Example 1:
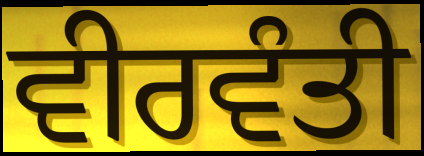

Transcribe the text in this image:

ਵੀਰਵੰਤੀ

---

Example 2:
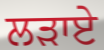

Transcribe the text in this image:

ਲੜਾਏ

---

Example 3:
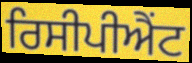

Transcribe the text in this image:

ਰਿਸੀਪੀਐਂਟ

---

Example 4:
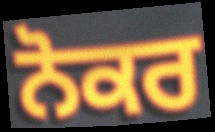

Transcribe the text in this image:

ਨੋਕਰ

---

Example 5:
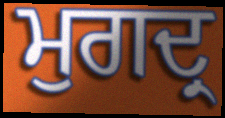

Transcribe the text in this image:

ਮੁਗਦ੍ਰ